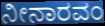
ನೀನಾರವಂ